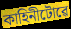
কাহিনীটোৱে